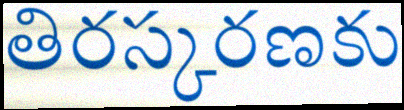
తిరస్కరణకు